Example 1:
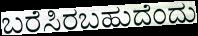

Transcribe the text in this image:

ಬರೆಸಿರಬಹುದೆಂದು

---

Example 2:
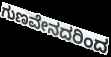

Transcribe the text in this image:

ಗುಣವೇನದರಿಂದ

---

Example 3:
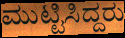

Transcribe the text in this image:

ಮುಟ್ಟಿಸಿದ್ದರು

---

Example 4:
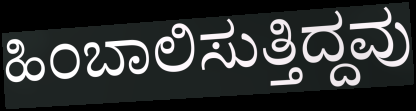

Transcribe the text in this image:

ಹಿಂಬಾಲಿಸುತ್ತಿದ್ದವು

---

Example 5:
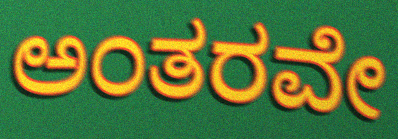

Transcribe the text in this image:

ಅಂತರವೇ